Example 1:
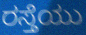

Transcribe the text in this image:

ರಸ್ತೆಯು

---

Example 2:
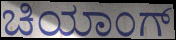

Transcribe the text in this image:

ಚಿಯಾಂಗ್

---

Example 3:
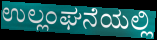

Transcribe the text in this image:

ಉಲ್ಲಂಘನೆಯಲ್ಲಿ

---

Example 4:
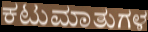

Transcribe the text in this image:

ಕಟುಮಾತುಗಳ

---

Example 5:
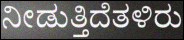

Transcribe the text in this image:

ನೀಡುತ್ತಿದೆತಳಿರು